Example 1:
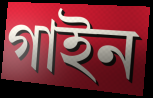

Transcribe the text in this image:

গাইন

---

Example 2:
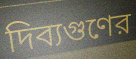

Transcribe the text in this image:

দিব্যগুণের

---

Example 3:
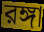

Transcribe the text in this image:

রঙ্গা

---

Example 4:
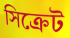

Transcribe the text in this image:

সিক্রেট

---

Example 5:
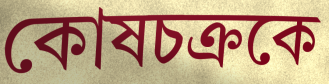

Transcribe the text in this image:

কোষচক্রকে